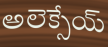
అలెక్సేయ్